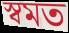
স্বমত